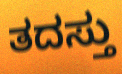
ತದಸ್ತು